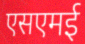
एसएमई